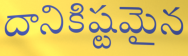
దానికిష్టమైన